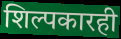
शिल्पकारही